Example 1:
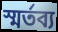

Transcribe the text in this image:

স্মৰ্তব্য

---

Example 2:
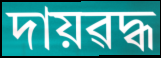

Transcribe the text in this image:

দায়ৱদ্ধ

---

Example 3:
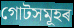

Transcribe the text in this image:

গোটসমূহৰ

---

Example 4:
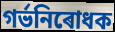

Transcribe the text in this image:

গৰ্ভনিৰোধক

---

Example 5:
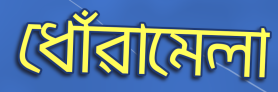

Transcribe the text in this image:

ধোঁৱামেলা